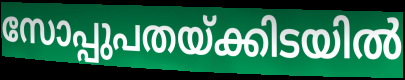
സോപ്പുപതയ്ക്കിടയിൽ